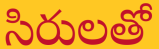
సిరులతో